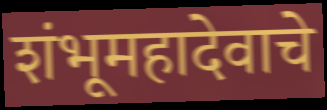
शंभूमहादेवाचे